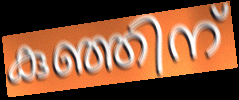
കുഞ്ഞിന്